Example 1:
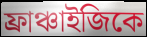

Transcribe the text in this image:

ফ্রাঞ্চাইজিকে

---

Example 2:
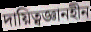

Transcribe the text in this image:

দায়িত্বজ্ঞানহীন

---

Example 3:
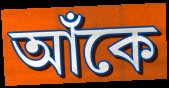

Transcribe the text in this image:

আঁকে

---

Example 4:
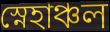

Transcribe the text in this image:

স্নেহাঞ্চল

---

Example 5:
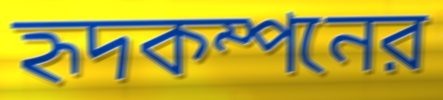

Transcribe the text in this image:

হৃদকম্পনের